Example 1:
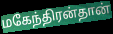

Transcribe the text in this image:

மகேந்திரன்தான்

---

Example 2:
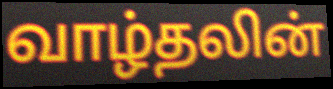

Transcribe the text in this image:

வாழ்தலின்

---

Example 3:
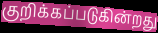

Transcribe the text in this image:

குறிக்கப்படுகின்றது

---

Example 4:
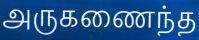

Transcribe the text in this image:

அருகணைந்த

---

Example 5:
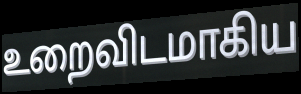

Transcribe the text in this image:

உறைவிடமாகிய